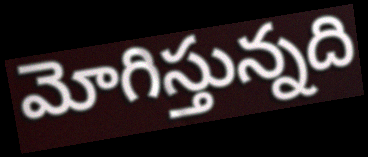
మోగిస్తున్నది